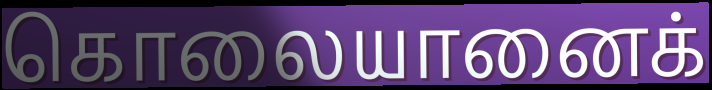
கொலையானைக்